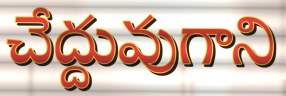
చేద్దువుగాని